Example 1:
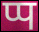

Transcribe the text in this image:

प्प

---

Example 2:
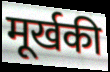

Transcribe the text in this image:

मूर्खकी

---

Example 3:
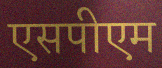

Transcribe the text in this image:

एसपीएम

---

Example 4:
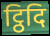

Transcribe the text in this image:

ट्ठिदि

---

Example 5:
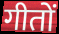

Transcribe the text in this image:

गीतों